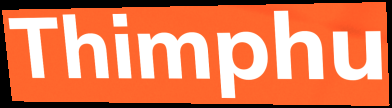
Thimphu